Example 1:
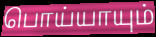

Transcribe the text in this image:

பொய்யாயும்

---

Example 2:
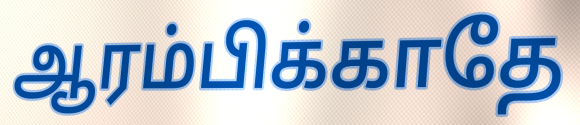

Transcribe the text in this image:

ஆரம்பிக்காதே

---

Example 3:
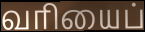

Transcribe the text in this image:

வரியைப்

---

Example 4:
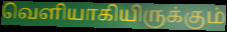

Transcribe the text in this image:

வெளியாகியிருக்கும்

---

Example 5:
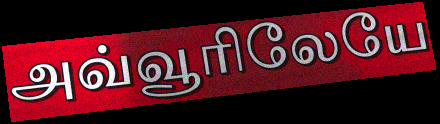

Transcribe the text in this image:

அவ்வூரிலேயே